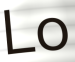
Lo